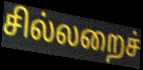
சில்லறைச்